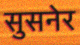
सुसनेर